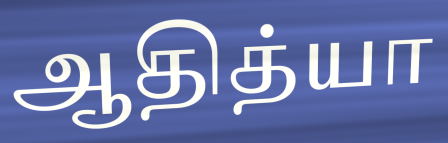
ஆதித்யா